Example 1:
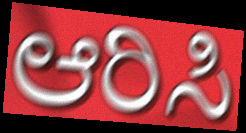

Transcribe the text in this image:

ಆರಿಸಿ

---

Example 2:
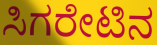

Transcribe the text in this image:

ಸಿಗರೇಟಿನ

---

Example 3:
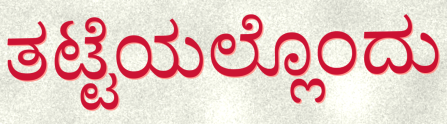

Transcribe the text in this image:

ತಟ್ಟೆಯಲ್ಲೊಂದು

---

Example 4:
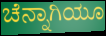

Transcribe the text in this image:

ಚೆನ್ನಾಗಿಯೂ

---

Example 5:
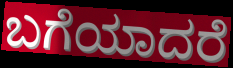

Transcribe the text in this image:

ಬಗೆಯಾದರೆ